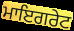
ਮਾਇਗਰੇਟ